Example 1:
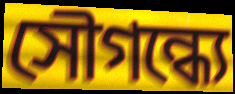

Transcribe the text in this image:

সৌগন্ধ্যে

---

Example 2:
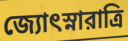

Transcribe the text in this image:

জ্যোৎস্নারাত্রি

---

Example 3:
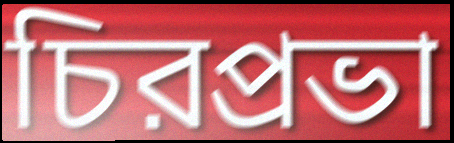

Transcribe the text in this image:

চিরপ্রভা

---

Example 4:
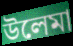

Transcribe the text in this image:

উলেমা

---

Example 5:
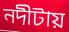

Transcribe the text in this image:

নদীটায়